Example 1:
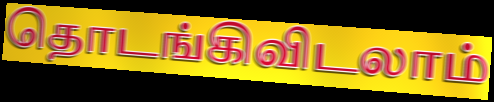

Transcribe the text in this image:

தொடங்கிவிடலாம்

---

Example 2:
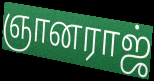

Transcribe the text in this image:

ஞானராஜ்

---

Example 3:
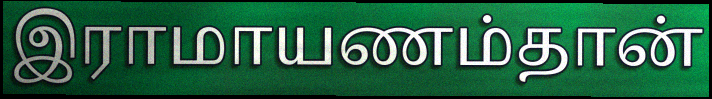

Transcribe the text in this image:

இராமாயணம்தான்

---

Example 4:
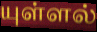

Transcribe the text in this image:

யுள்ளல்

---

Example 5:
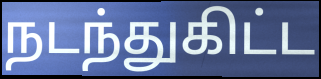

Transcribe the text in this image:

நடந்துகிட்ட